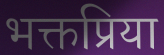
भक्तप्रिया